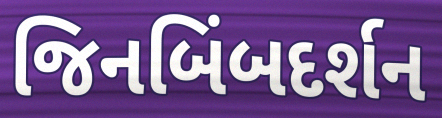
જિનબિંબદર્શન